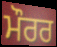
ਮੌਰਰ